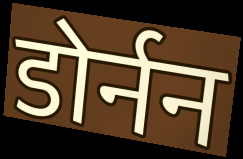
डोर्नन